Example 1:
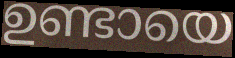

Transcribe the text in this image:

ഉണ്ടായെ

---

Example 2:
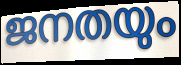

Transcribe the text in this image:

ജനതയും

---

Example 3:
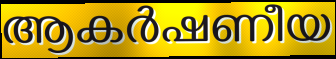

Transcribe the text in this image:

ആകർഷണീയ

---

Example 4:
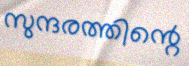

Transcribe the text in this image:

സുന്ദരത്തിന്റെ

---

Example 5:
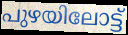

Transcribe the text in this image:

പുഴയിലോട്ട്